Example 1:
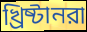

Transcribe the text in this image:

খ্রিষ্টানরা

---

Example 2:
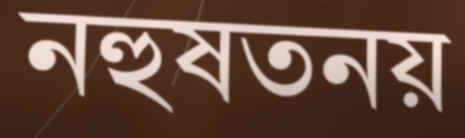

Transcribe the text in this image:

নহুষতনয়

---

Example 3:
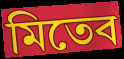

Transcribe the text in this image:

মিতেব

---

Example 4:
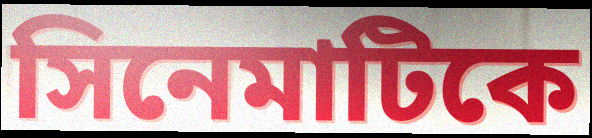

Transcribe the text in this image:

সিনেমাটিকে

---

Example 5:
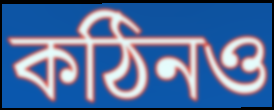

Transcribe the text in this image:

কঠিনও